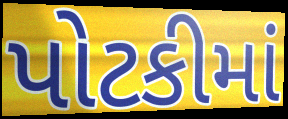
પોટકીમાં